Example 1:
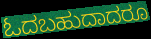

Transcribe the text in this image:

ಓದಬಹುದಾದರೂ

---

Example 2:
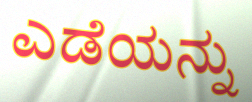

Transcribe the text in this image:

ಎಡೆಯನ್ನು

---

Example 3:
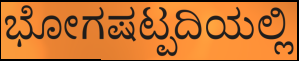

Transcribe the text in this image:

ಭೋಗಷಟ್ಪದಿಯಲ್ಲಿ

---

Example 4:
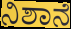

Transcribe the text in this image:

ನಿಶಾನೆ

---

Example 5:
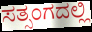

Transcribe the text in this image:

ಸತ್ಸಂಗದಲ್ಲಿ